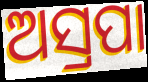
ଅସ୍ରପା